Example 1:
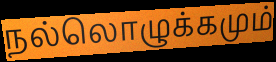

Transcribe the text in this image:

நல்லொழுக்கமும்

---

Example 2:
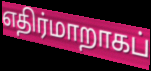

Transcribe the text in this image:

எதிர்மாறாகப்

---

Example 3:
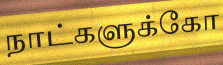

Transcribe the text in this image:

நாட்களுக்கோ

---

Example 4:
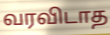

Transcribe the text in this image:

வரவிடாத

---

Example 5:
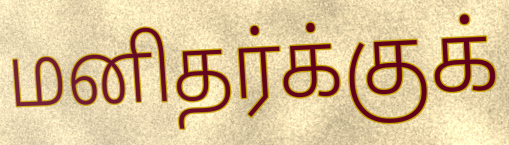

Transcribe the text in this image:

மனிதர்க்குக்